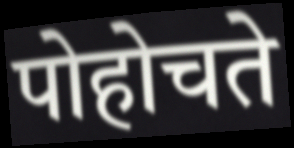
पोहोचते